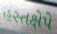
હસ્તક્ષેપે